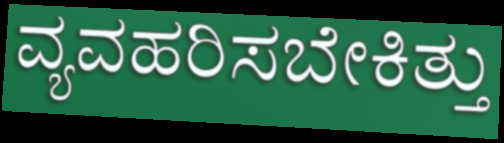
ವ್ಯವಹರಿಸಬೇಕಿತ್ತು